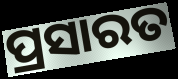
ପ୍ରସାରତ